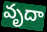
వృదా